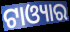
ଟାଓ୍ୟାର